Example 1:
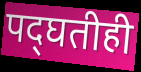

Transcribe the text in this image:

पद्घतीही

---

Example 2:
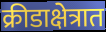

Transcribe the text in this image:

क्रीडाक्षेत्रात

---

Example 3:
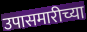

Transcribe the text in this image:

उपासमारीच्या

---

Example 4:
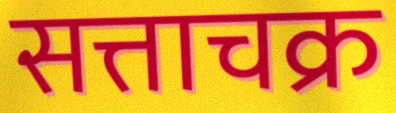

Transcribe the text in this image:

सत्ताचक्र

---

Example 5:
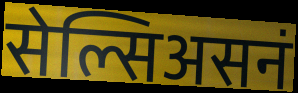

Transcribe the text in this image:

सेल्सिअसनं